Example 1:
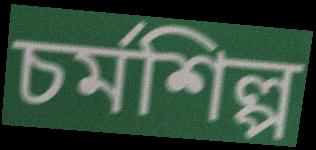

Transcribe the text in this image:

চর্মশিল্প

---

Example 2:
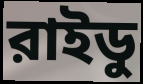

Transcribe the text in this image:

রাইডু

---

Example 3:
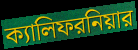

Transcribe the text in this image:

ক্যালিফরনিয়ার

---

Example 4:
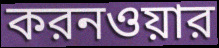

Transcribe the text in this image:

করনওয়ার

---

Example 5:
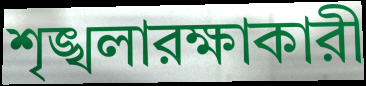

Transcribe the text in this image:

শৃঙ্খলারক্ষাকারী